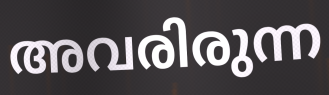
അവരിരുന്ന